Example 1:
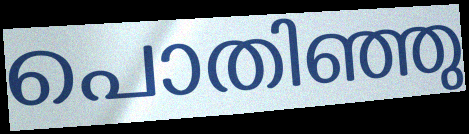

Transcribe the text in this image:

പൊതിഞ്ഞു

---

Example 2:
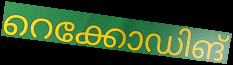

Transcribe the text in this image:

റെക്കോഡിങ്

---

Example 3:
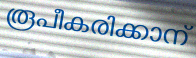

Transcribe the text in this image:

രൂപീകരിക്കാന്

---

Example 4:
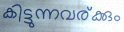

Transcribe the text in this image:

കിട്ടുന്നവര്ക്കും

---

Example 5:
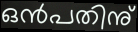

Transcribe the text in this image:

ഒൻപതിനു്